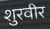
शुरवीर